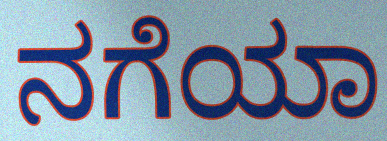
ನಗೆಯಾ